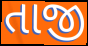
તાજી